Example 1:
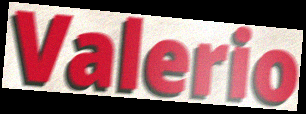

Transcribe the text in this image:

Valerio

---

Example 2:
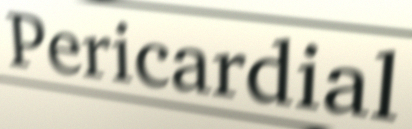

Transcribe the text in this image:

Pericardial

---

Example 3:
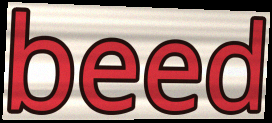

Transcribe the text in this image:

beed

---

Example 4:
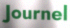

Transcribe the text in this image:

Journel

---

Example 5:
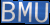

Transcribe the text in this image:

BMU